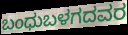
ಬಂಧುಬಳಗದವರ